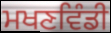
ਮਖਣਵਿੰਡੀ